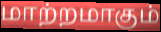
மாற்றமாகும்